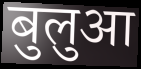
बुलुआ